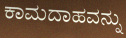
ಕಾಮದಾಹವನ್ನು